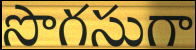
సొగసుగా